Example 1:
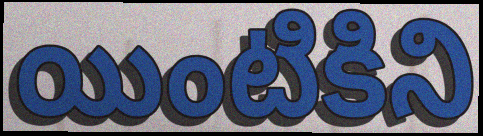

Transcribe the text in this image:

యింటికిని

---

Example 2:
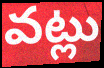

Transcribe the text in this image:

వట్లు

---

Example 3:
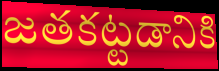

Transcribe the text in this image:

జతకట్టడానికి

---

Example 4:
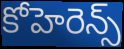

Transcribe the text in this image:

కోహెరెన్స్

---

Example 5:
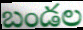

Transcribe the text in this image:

బండల